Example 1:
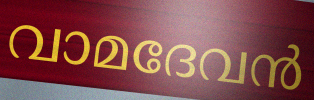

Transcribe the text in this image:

വാമദേവൻ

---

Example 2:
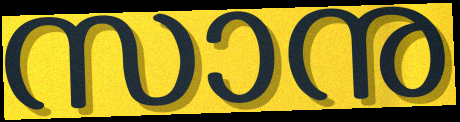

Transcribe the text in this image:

സാനു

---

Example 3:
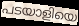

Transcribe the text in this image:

പടയാളിയെ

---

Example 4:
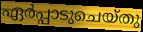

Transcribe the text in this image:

ഏർപ്പാടുചെയ്തു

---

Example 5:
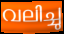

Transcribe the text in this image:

വലിച്ചു